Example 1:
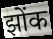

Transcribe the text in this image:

झोंक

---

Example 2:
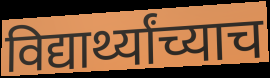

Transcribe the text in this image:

विद्यार्थ्यांच्याच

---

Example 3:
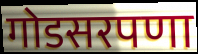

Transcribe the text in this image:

गोडसरपणा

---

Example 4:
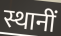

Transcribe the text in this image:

स्थानीं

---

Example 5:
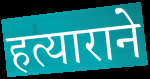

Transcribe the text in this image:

हत्याराने